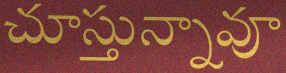
చూస్తున్నావూ